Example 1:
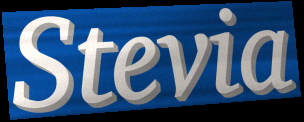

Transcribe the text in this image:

Stevia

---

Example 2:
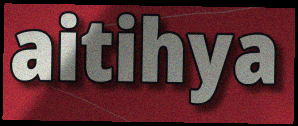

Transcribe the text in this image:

aitihya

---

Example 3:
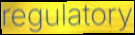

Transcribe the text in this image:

regulatory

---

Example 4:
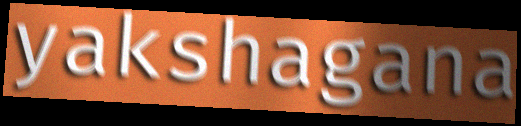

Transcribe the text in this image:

yakshagana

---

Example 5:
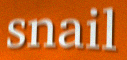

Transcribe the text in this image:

snail